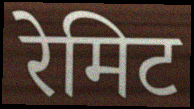
रेमिट